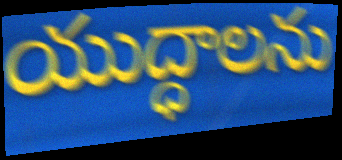
యుద్ధాలను